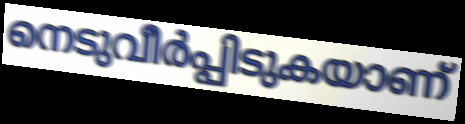
നെടുവീർപ്പിടുകയാണ്